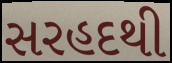
સરહદથી